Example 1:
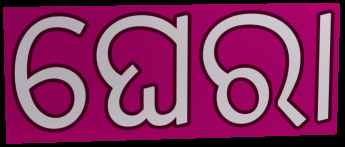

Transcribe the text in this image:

ଘେରା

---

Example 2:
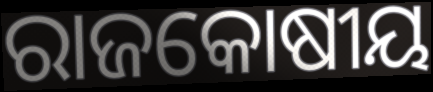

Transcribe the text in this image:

ରାଜକୋଷୀୟ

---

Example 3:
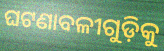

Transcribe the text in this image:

ଘଟଣାବଳୀଗୁଡ଼ିକୁ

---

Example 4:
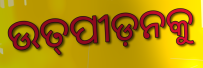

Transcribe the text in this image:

ଉତ୍‌ପୀଡ଼ନକୁ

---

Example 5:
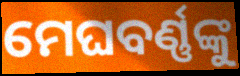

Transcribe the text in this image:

ମେଘବର୍ଣ୍ଣଙ୍କୁ